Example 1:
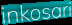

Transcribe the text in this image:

inkosari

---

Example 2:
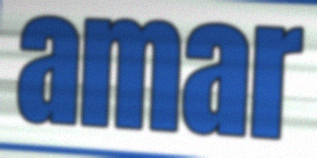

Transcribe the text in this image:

amar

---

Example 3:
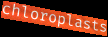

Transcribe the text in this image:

chloroplasts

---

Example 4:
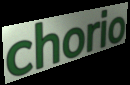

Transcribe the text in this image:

chorio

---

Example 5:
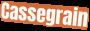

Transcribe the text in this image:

Cassegrain